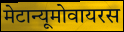
मेटान्यूमोवायरस